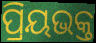
ପ୍ରିୟଭକ୍ତ